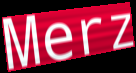
Merz